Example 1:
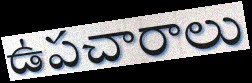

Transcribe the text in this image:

ఉపచారాలు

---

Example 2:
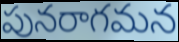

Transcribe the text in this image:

పునరాగమన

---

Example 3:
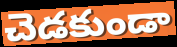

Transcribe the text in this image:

చెడకుండా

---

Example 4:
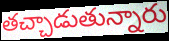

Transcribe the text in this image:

తచ్చాడుతున్నారు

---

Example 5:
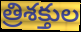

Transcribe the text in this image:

త్రిశక్తుల